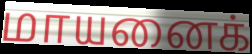
மாயனைக்